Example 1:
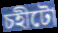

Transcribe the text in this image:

চহীটো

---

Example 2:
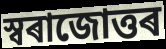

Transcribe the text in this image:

স্বৰাজোত্তৰ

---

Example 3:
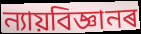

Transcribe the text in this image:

ন্যায়বিজ্ঞানৰ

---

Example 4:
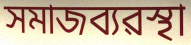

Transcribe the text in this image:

সমাজব্যৱস্থা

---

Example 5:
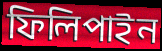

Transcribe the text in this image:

ফিলিপাইন